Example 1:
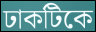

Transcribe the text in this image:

ঢাকটিকে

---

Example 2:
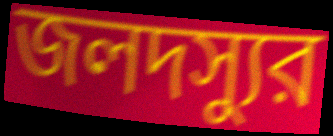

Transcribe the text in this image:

জলদস্যুর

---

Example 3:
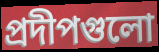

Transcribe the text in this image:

প্রদীপগুলো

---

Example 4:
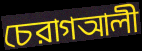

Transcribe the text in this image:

চেরাগআলী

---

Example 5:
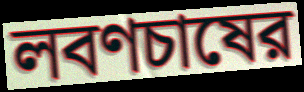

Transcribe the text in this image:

লবণচাষের